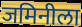
जमिनीला